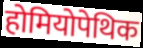
होमियोपेथिक